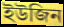
ইউজিন